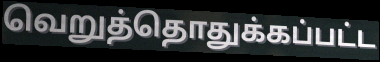
வெறுத்தொதுக்கப்பட்ட